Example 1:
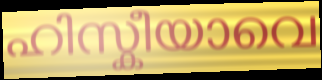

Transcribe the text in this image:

ഹിസ്കീയാവെ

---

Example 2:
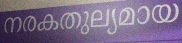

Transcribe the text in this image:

നരകതുല്യമായ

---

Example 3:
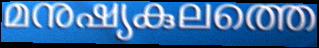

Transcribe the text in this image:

മനുഷ്യകുലത്തെ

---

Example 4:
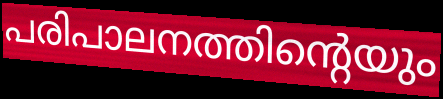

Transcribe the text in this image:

പരിപാലനത്തിന്റെയും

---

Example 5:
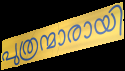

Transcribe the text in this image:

പുത്രന്മാരായി